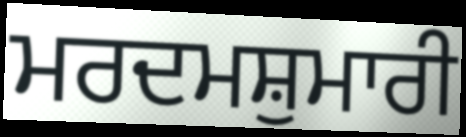
ਮਰਦਮਸ਼ੁਮਾਰੀ